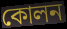
কোলন